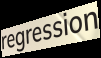
regression